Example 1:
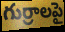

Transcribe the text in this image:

గుర్రాలపై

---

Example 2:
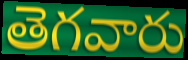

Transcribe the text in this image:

తెగవారు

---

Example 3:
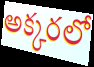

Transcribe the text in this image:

అక్కరలో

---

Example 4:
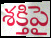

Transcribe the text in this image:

శక్తిపై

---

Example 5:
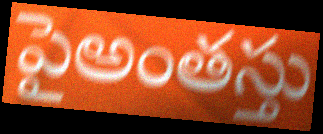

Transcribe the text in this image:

పైఅంతస్తు